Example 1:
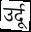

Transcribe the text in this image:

उर्दू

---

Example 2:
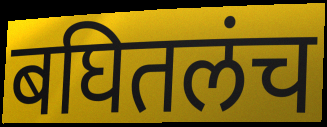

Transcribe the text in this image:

बघितलंच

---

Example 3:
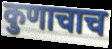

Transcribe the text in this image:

कुणाचाच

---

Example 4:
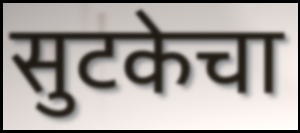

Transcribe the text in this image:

सुटकेचा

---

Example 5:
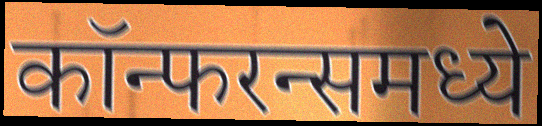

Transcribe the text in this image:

कॉन्फरन्समध्ये